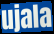
ujala